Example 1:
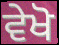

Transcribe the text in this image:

ਵੇਖੋ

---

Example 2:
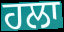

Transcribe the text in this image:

ਹਲਾ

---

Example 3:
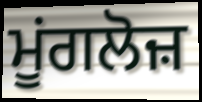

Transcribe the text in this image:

ਮੂਂਗਲੋਜ਼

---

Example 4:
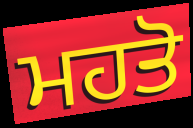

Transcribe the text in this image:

ਮਹਤੋ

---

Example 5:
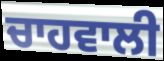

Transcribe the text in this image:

ਚਾਹਵਾਲੀ